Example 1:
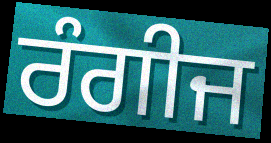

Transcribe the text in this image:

ਰੰਗੀਜ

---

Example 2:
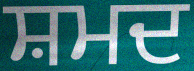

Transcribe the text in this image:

ਸ਼ਮਦ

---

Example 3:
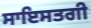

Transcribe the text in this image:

ਸਾਇਸਤਗੀ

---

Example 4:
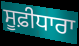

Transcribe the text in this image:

ਸੂਫ਼ੀਧਾਰਾ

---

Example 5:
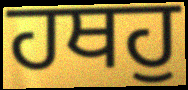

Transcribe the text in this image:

ਹਥਹੁ